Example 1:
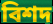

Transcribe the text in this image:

বিশদ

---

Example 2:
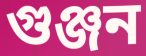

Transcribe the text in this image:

গুঞ্জন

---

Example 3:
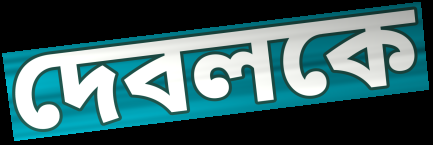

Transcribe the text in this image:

দেবলকে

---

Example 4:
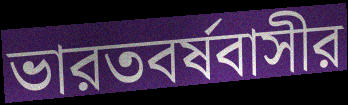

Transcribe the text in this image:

ভারতবর্ষবাসীর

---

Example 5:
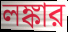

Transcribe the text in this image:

লঙ্কার